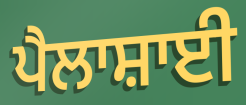
ਪੈਲਾਸ਼ਾਈ